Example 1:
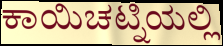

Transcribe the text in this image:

ಕಾಯಿಚಟ್ನಿಯಲ್ಲಿ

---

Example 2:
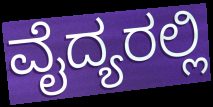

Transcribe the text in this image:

ವೈದ್ಯರಲ್ಲಿ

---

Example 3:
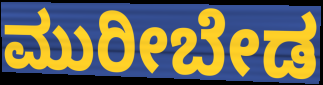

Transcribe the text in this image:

ಮುರೀಬೇಡ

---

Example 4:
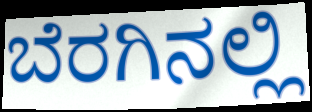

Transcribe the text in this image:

ಬೆರಗಿನಲ್ಲಿ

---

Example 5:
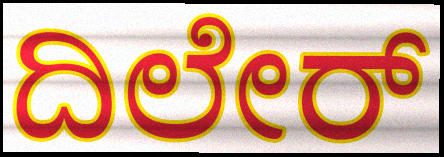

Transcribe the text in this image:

ದಿಲೇರ್